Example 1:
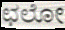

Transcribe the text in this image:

ಛಲೋ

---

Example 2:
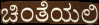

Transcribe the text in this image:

ಚಿಂತೆಯಲಿ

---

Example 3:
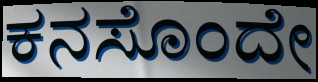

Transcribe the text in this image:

ಕನಸೊಂದೇ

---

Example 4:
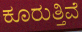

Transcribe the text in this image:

ಕೂರುತ್ತಿವೆ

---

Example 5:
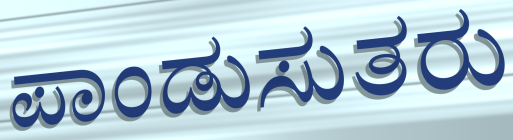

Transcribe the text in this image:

ಪಾಂಡುಸುತರು